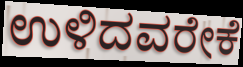
ಉಳಿದವರೇಕೆ